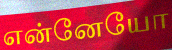
என்னேயோ